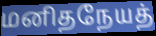
மனிதநேயத்